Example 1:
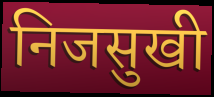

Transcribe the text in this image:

निजसुखी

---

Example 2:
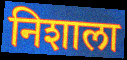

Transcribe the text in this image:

निशाला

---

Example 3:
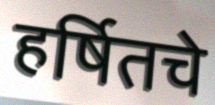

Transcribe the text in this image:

हर्षितचे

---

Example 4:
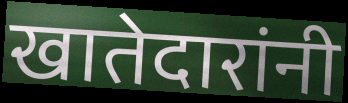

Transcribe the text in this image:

खातेदारांनी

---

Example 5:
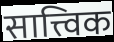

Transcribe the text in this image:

सात्त्विक